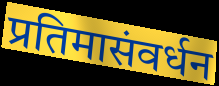
प्रतिमासंवर्धन